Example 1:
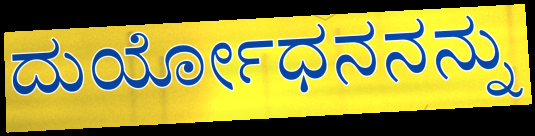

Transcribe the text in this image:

ದುರ್ಯೋಧನನನ್ನು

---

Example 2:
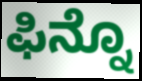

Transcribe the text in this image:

ಫಿನ್ನೊ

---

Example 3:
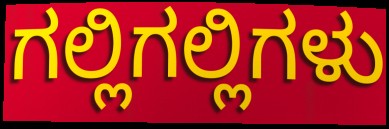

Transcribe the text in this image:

ಗಲ್ಲಿಗಲ್ಲಿಗಳು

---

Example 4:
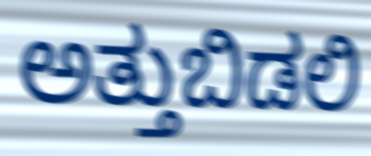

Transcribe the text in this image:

ಅತ್ತುಬಿಡಲಿ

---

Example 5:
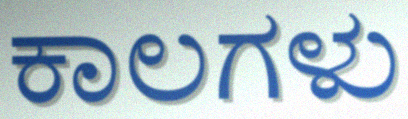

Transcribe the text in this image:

ಕಾಲಗಳು